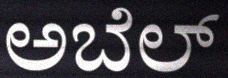
ಅಬೆಲ್